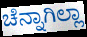
ಚೆನ್ನಾಗಿಲ್ಲಾ